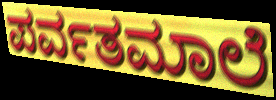
ಪರ್ವತಮಾಲೆ